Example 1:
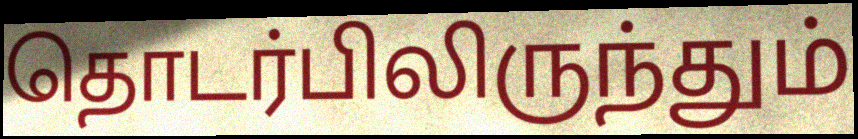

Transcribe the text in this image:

தொடர்பிலிருந்தும்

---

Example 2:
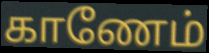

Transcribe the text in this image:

காணேம்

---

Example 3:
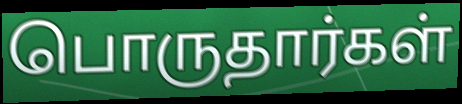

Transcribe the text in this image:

பொருதார்கள்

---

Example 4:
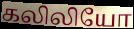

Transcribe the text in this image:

கலிலியோ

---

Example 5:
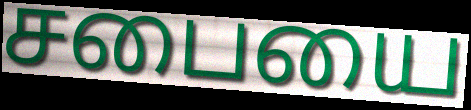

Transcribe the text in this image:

சபையை